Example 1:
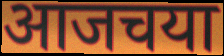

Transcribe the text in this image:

आजचया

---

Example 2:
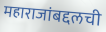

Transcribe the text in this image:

महाराजांबद्दलची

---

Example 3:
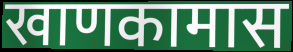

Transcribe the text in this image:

खाणकामास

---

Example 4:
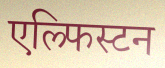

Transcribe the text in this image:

एल्फिस्टन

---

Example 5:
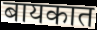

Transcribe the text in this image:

बायकात